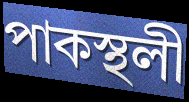
পাকস্থলী